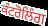
ਕੰਟਰੋਲਿੰਗ